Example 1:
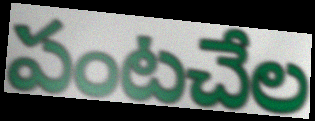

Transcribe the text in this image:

పంటచేల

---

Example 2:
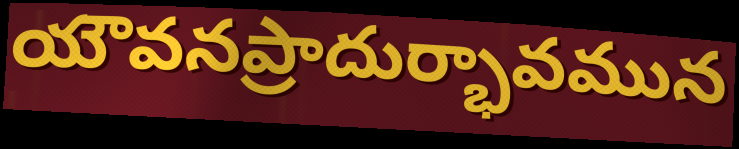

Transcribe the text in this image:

యౌవనప్రాదుర్భావమున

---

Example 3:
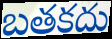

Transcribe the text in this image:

బతకదు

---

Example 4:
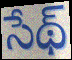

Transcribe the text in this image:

సేథ్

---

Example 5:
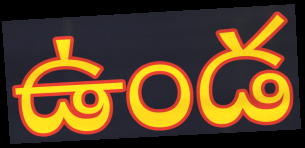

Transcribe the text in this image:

ఉండ